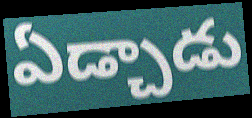
ఏడ్చాడు